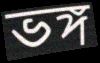
ভঙ্গ